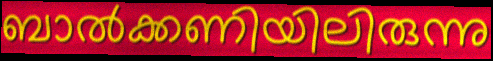
ബാൽക്കണിയിലിരുന്നു